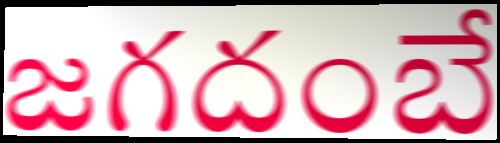
జగదంబే